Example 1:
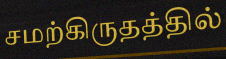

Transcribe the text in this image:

சமற்கிருதத்தில்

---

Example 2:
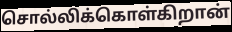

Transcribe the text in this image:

சொல்லிக்கொள்கிறான்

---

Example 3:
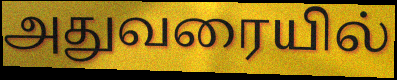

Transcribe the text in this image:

அதுவரையில்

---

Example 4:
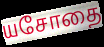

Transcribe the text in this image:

யசோதை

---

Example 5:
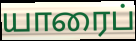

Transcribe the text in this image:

யாரைப்